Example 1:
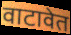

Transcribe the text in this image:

वाटावेत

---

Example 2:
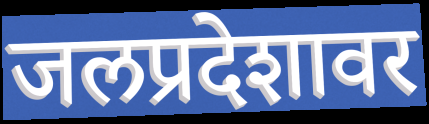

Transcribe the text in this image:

जलप्रदेशावर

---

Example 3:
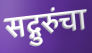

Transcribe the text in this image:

सद्गुरुंचा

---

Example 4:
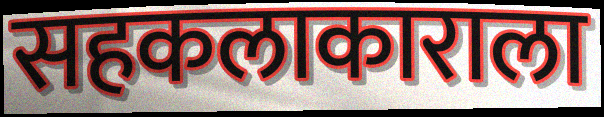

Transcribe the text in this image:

सहकलाकाराला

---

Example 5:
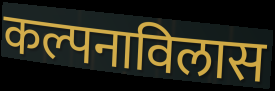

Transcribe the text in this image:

कल्पनाविलास